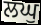
ਲਘੁ